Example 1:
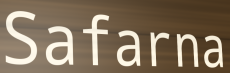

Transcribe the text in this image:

Safarna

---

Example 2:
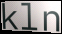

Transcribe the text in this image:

kln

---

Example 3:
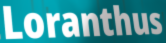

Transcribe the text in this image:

Loranthus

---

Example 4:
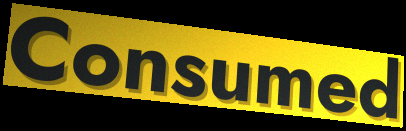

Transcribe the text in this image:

Consumed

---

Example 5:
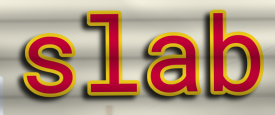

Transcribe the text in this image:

slab